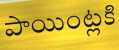
పాయింట్లకి